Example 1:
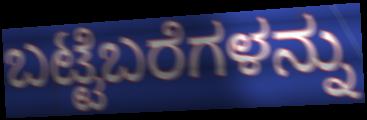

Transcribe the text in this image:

ಬಟ್ಟೆಬರೆಗಳನ್ನು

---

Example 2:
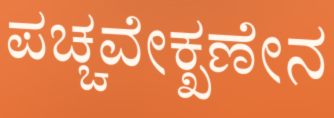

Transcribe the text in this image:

ಪಚ್ಚವೇಕ್ಖಣೇನ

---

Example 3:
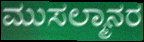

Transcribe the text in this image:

ಮುಸಲ್ಮಾನರ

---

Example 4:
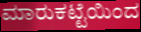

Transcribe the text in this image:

ಮಾರುಕಟ್ಟೆಯಿಂದ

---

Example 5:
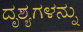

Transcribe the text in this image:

ದೃಶ್ಯಗಳನ್ನು